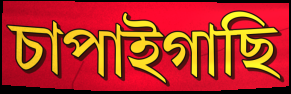
চাপাইগাছি